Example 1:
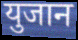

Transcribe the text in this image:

युजान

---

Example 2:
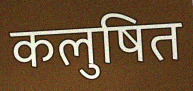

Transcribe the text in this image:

कलुषित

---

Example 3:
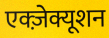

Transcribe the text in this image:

एक्ज़ेक्यूशन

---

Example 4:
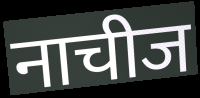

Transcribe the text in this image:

नाचीज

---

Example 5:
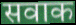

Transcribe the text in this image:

सवाक